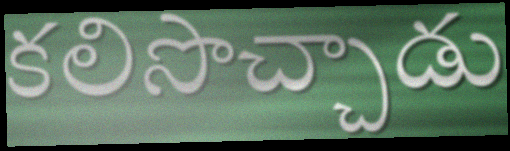
కలిసొచ్చాడు